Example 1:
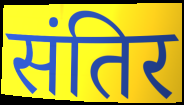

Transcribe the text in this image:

संतिर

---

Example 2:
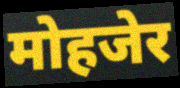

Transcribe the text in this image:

मोहजेर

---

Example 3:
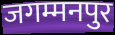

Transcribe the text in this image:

जगम्मनपुर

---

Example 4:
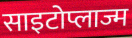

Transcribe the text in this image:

साइटोप्लाज्म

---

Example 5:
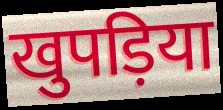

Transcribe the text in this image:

खुपड़िया